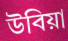
উবিয়া